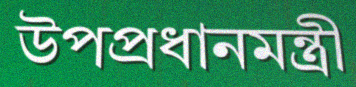
উপপ্রধানমন্ত্রী